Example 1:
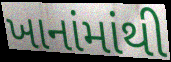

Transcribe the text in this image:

ખાનાંમાંથી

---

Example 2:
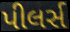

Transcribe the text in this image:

પીલર્સ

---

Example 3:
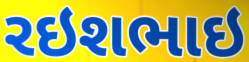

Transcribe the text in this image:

રઇશભાઇ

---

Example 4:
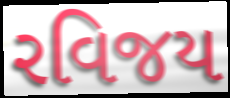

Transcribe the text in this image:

રવિજય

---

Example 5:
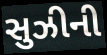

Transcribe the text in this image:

સુઝીની